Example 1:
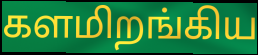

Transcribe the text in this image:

களமிறங்கிய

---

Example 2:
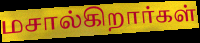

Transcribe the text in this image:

மசால்கிறார்கள்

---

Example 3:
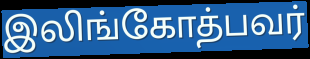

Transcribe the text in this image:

இலிங்கோத்பவர்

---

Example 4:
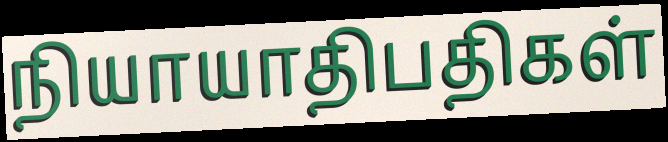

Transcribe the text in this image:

நியாயாதிபதிகள்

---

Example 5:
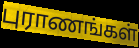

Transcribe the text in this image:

புராணங்கள்